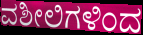
ವಶೀಲಿಗಳಿಂದ